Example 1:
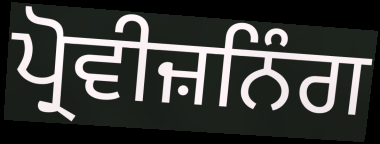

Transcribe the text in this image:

ਪ੍ਰੋਵੀਜ਼ਨਿੰਗ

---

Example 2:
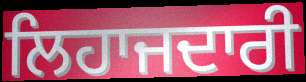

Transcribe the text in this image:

ਲਿਹਾਜਦਾਰੀ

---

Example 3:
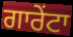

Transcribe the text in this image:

ਗਾਰੇਂਟਾ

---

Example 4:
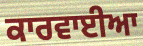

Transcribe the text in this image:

ਕਾਰਵਾਈਆ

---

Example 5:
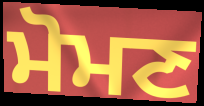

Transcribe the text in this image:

ਮੋਮਣ